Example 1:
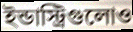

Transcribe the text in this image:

ইন্ডাস্ট্রিগুলোও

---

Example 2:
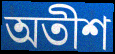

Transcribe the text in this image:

অতীশ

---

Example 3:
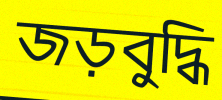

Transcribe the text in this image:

জড়বুদ্ধি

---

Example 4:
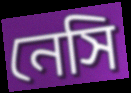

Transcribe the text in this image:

নেসি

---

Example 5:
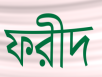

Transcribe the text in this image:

ফরীদ